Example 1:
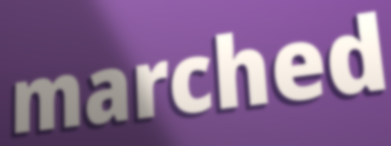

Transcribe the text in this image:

marched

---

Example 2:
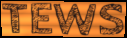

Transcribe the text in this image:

TEWS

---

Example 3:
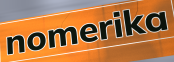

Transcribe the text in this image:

nomerika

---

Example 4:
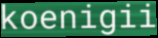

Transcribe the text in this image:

koenigii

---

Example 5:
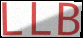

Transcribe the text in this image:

LLB